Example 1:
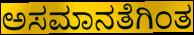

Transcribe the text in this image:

ಅಸಮಾನತೆಗಿಂತ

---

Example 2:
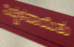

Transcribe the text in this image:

ನಿಚ್ಚಳವಾಯಿತು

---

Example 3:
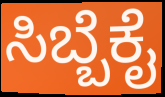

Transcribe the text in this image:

ಸಿಬ್ಬೆಕೈ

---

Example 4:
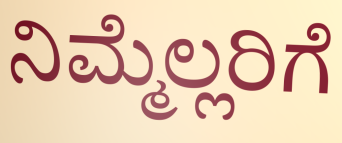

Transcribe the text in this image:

ನಿಮ್ಮೆಲ್ಲರಿಗೆ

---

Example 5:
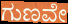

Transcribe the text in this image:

ಗುಣವೇ